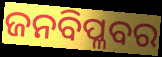
ଜନବିପ୍ଳବର